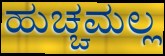
ಹುಚ್ಚಮಲ್ಲ